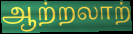
ஆற்றலாற்